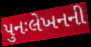
પુનઃલેખનની